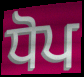
ਧੋਪ